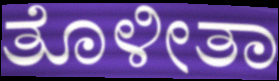
ತೊಳೀತಾ